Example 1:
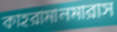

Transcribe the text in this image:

কাহরামানমারাস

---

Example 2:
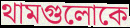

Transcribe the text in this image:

থামগুলোকে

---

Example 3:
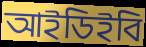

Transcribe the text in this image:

আইডিইবি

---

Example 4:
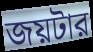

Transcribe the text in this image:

জয়টার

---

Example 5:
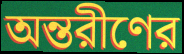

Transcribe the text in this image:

অন্তরীণের